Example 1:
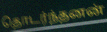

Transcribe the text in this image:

தொடர்ந்தனன்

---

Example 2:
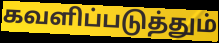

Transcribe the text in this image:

கவளிப்படுத்தும்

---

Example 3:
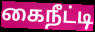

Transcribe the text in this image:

கைநீட்டி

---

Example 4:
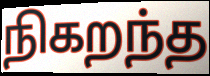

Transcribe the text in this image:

நிகறந்த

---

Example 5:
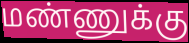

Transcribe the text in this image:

மண்ணுக்கு